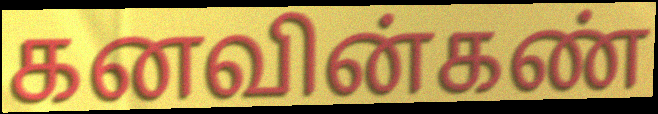
கனவின்கண்